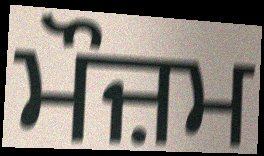
ਮੌਜ਼ਮ